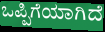
ಒಪ್ಪಿಗೆಯಾಗಿದೆ